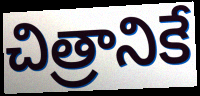
చిత్రానికే